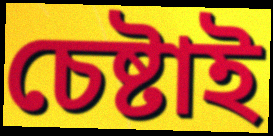
চেষ্টাই